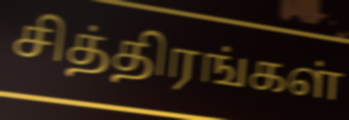
சித்திரங்கள்